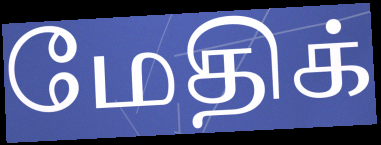
மேதிக்